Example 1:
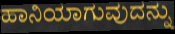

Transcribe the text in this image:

ಹಾನಿಯಾಗುವುದನ್ನು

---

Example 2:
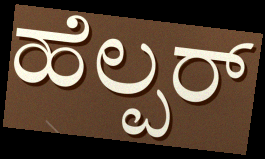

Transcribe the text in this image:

ಹೆಲ್ಪರ್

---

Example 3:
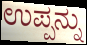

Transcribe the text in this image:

ಉಪ್ಪನ್ನು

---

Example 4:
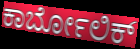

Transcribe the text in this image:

ಕಾರ್ಬೋಲಿಕ್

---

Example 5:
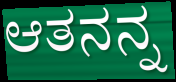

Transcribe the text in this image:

ಆತನನ್ನ